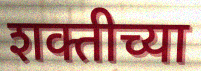
शक्तीच्या